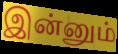
இன்னும்